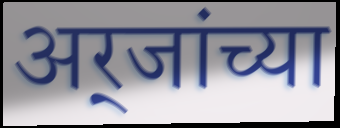
अर्जांच्या